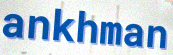
ankhman